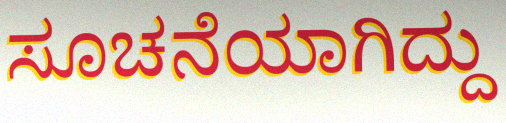
ಸೂಚನೆಯಾಗಿದ್ದು